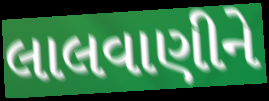
લાલવાણીને